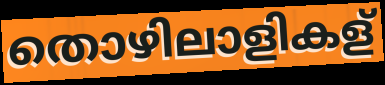
തൊഴിലാളികള്